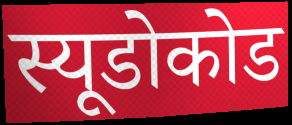
स्यूडोकोड